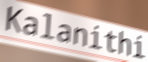
Kalanithi